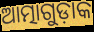
ଆତ୍ମାଗୁଡ଼ାକ